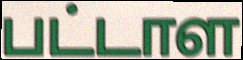
பட்டாள